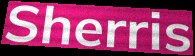
Sherris